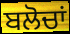
ਬਲੋਚਾਂ